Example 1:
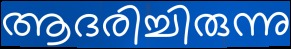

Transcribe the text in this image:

ആദരിച്ചിരുന്നു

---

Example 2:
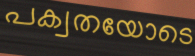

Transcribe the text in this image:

പക്വതയോടെ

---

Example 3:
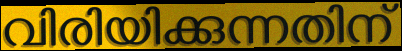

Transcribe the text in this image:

വിരിയിക്കുന്നതിന്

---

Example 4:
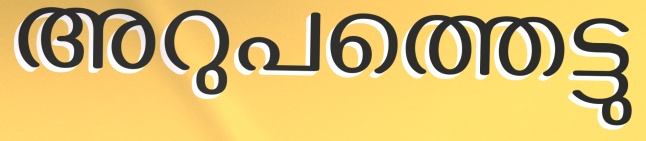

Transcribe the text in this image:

അറുപത്തെട്ടു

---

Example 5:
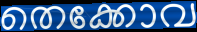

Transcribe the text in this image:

തെക്കോവ